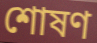
শোষণ